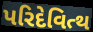
પરિદેવિત્થ